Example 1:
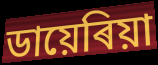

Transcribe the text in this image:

ডায়েৰিয়া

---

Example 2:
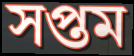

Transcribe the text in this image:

সপ্তম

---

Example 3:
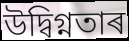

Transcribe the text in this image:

উদ্বিগ্নতাৰ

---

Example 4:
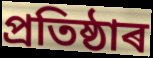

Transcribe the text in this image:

প্ৰতিষ্ঠাৰ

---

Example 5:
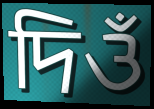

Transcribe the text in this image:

দিওঁ